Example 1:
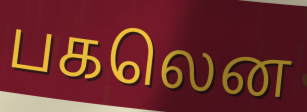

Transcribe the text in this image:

பகலென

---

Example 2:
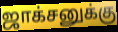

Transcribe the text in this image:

ஜாக்சனுக்கு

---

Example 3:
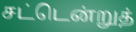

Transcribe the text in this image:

சட்டென்றுத்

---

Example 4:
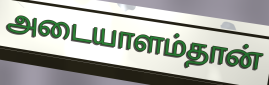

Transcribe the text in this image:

அடையாளம்தான்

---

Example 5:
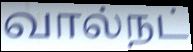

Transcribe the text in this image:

வால்நட்